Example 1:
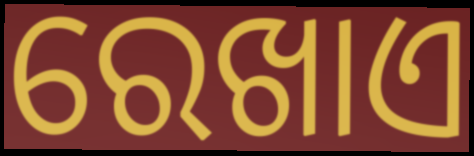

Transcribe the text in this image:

ରେଖାଏ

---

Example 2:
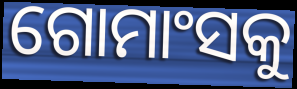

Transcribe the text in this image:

ଗୋମାଂସକୁ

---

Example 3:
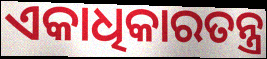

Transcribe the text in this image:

ଏକାଧିକାରତନ୍ତ୍ର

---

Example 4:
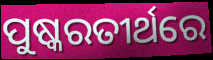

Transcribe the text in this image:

ପୁଷ୍କରତୀର୍ଥରେ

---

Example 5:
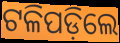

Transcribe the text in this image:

ଟଳିପଡ଼ିଲେ